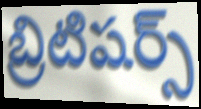
బ్రిటిషర్స్